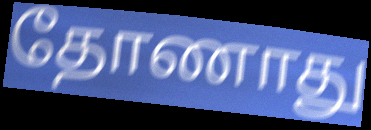
தோணாது